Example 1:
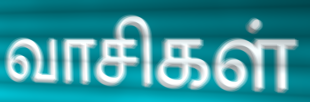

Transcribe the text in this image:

வாசிகள்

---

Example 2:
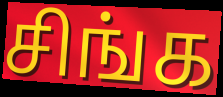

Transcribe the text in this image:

சிங்க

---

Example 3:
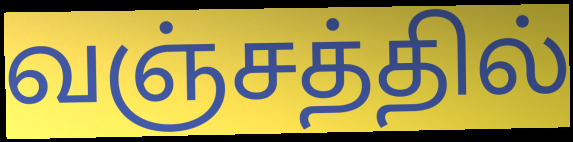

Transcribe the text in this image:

வஞ்சத்தில்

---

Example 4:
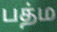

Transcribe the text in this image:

பத்ம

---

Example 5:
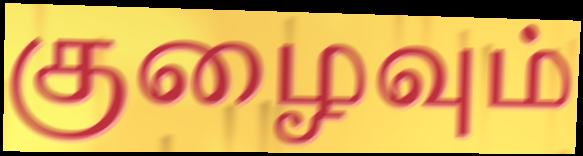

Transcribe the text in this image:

குழைவும்